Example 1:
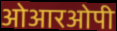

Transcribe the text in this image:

ओआरओपी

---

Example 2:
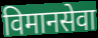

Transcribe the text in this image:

विमानसेवा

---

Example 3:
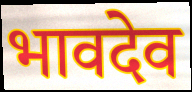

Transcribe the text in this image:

भावदेव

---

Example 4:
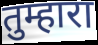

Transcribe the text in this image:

तुम्हारा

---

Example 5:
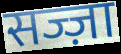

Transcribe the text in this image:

सज्ज़ा